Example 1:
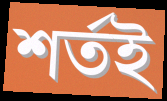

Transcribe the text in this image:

শর্তই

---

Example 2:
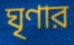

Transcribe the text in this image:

ঘৃণার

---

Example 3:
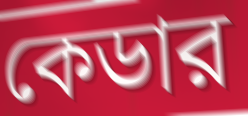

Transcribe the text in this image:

কেডার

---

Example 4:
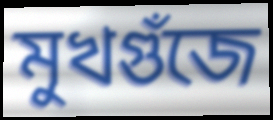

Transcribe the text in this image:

মুখগুঁজে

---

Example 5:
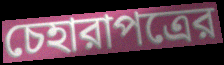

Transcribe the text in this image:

চেহারাপত্রের